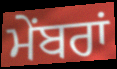
ਮੇਂਬਰਾਂ